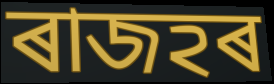
ৰাজহৰ